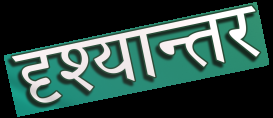
दृश्यान्तर